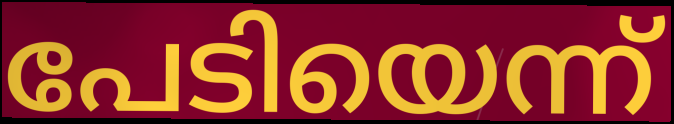
പേടിയെന്ന്